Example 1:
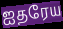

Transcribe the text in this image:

ஐதரேய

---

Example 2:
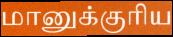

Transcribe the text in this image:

மானுக்குரிய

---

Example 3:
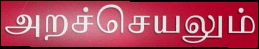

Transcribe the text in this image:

அறச்செயலும்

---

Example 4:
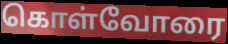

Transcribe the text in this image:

கொள்வோரை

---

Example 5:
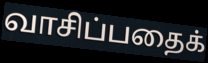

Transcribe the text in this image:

வாசிப்பதைக்